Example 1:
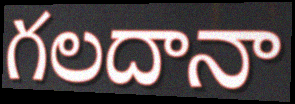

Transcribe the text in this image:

గలదానా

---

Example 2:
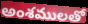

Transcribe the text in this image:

అంశములతో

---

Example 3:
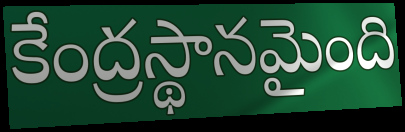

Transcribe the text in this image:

కేంద్రస్థానమైంది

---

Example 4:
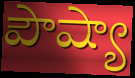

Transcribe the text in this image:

పౌష్యా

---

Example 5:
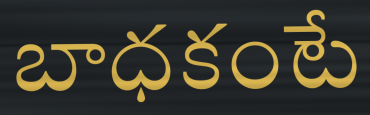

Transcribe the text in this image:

బాధకంటే